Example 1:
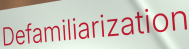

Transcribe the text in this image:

Defamiliarization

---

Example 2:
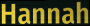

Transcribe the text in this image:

Hannah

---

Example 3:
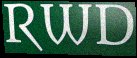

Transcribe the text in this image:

RWD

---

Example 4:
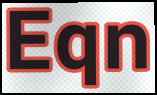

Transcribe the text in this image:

Eqn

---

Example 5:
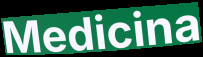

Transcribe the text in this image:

Medicina